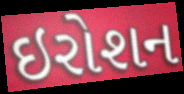
ઇરોશન